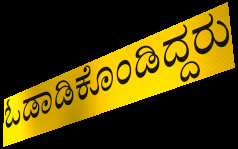
ಓಡಾಡಿಕೊಂಡಿದ್ದರು